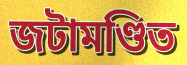
জটামণ্ডিত